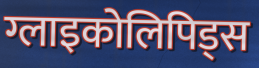
ग्लाइकोलिपिड्स